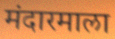
मंदारमाला